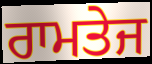
ਰਾਮਤੇਜ